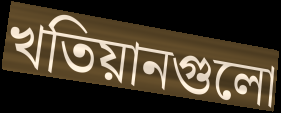
খতিয়ানগুলো